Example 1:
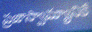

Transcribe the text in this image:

ప్రజాస్వామ్యానికే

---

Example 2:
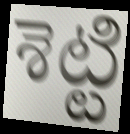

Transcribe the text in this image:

శెట్టి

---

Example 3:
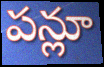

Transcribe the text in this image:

పన్లూ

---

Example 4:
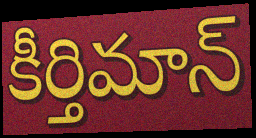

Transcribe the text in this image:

కీర్తిమాన్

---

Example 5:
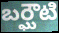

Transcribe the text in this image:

బర్ఘౌటి